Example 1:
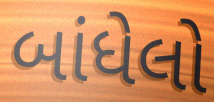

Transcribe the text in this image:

બાંધેલો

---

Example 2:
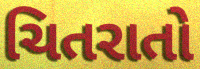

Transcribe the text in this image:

ચિતરાતો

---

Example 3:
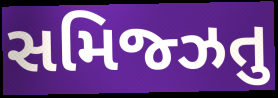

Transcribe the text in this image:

સમિજ્ઝતુ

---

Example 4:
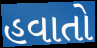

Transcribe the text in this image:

હવાતો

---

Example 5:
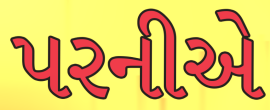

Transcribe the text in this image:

પરનીએ